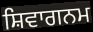
ਸ਼ਿਵਾਗਨਮ